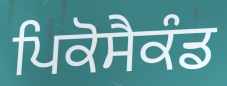
ਪਿਕੋਸੈਕੰਡ